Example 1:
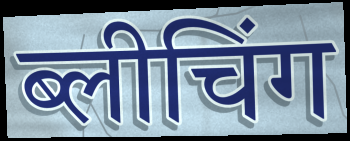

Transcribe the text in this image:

ब्लीचिंग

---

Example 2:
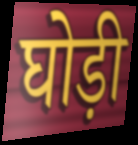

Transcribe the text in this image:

घोड़ी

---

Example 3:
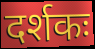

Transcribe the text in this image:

दर्शकः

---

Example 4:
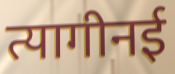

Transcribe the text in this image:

त्यागीनई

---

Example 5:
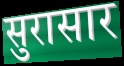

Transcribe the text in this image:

सुरासार